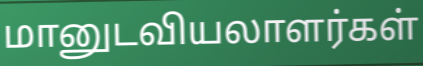
மானுடவியலாளர்கள்